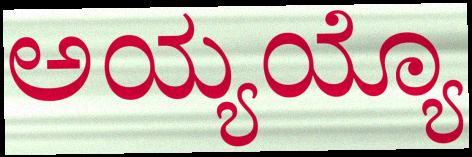
ಅಯ್ಯಯ್ಯೊ